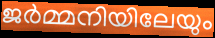
ജർമ്മനിയിലേയും